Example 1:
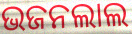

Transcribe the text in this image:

ଭଜନଲାଲ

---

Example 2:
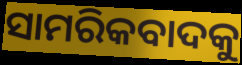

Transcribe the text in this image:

ସାମରିକବାଦକୁ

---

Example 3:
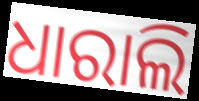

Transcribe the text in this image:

ଧାରାଲି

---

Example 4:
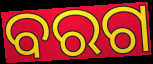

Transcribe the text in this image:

ବରଗ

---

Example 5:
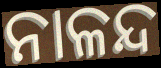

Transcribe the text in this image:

ନାଳନ୍ଦ